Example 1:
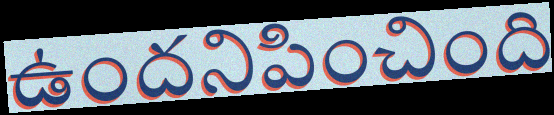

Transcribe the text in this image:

ఉందనిపించింది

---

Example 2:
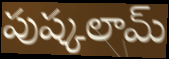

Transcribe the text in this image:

పుష్కలామ్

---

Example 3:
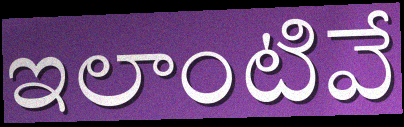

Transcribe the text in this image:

ఇలాంటివే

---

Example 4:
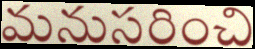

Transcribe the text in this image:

మనుసరించి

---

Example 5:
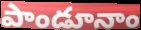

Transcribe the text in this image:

పాండూనాం